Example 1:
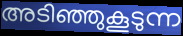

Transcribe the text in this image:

അടിഞ്ഞുകൂടുന്ന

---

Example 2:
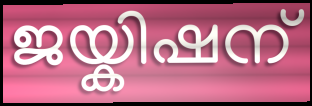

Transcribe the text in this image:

ജയ്കിഷന്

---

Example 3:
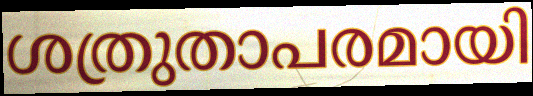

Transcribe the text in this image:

ശത്രുതാപരമായി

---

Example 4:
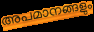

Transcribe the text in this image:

അപമാനങ്ങളും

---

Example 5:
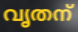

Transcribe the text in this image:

വൃതന്